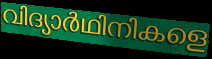
വിദ്യാർഥിനികളെ